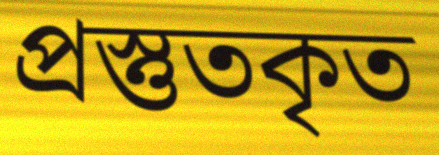
প্রস্তুতকৃত